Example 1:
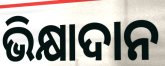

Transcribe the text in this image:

ଭିକ୍ଷାଦାନ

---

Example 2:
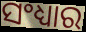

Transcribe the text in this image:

ସଂଧ୍ୟାର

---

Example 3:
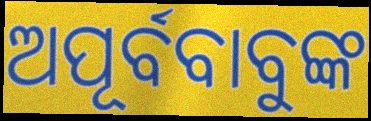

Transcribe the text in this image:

ଅପୂର୍ବବାବୁଙ୍କ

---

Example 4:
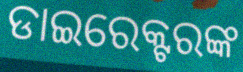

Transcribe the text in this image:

ଡାଇରେକ୍ଟରଙ୍କ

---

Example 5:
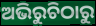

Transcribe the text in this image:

ଅଭିରୁଚିଠାରୁ